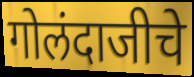
गोलंदाजीचे